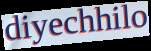
diyechhilo